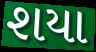
શયા